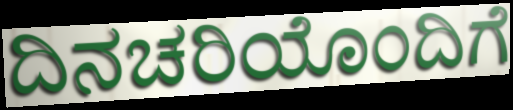
ದಿನಚರಿಯೊಂದಿಗೆ